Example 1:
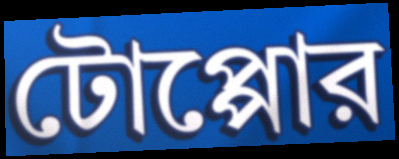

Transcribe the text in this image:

টোপ্পোর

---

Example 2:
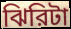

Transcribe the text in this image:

ঝিরিটা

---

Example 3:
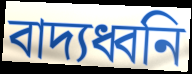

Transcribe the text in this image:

বাদ্যধ্বনি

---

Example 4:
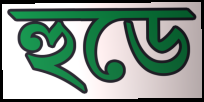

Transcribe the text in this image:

হুডে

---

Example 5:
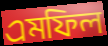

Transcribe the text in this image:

এমফিল